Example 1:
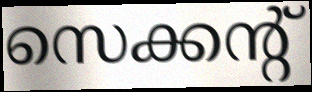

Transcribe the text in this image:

സെക്കന്റ്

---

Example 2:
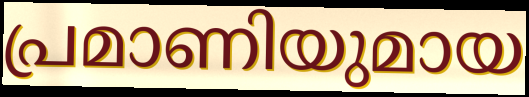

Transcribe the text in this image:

പ്രമാണിയുമായ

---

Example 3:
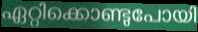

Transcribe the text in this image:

ഏറ്റിക്കൊണ്ടുപോയി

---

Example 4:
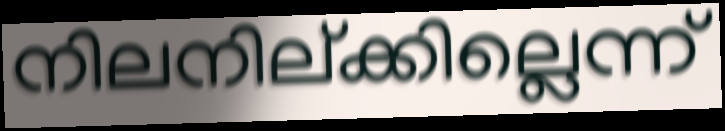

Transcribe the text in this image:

നിലനില്ക്കില്ലെന്ന്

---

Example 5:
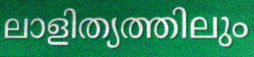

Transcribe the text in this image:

ലാളിത്യത്തിലും